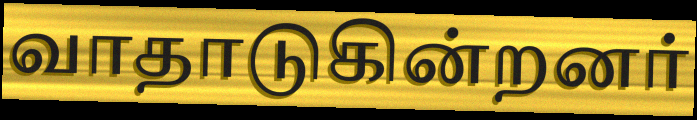
வாதாடுகின்றனர்